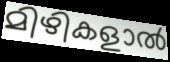
മിഴികളാൽ